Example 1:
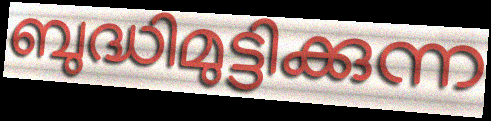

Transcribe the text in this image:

ബുദ്ധിമുട്ടിക്കുന്ന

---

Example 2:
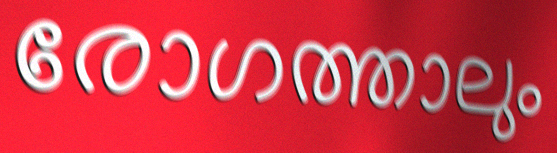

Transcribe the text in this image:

രോഗത്താലും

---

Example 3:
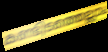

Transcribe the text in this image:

കണ്ടിടത്തെല്ലാം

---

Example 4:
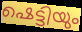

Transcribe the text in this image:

ഷെട്ടിയും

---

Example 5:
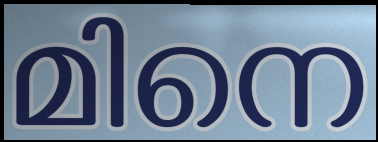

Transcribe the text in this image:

മിനെ